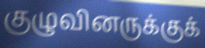
குழுவினருக்குக்